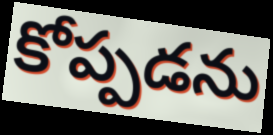
కోప్పడను